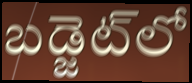
బడ్జెట్‌లో